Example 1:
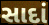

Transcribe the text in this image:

સાદાં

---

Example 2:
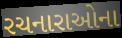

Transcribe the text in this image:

રચનારાઓના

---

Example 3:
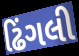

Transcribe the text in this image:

ઢિંગલી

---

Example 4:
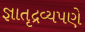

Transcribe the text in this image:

જ્ઞાતૃદ્રવ્યપણે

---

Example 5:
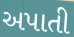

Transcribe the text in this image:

અપાતી